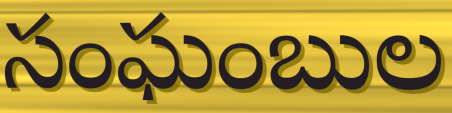
సంఘంబుల